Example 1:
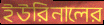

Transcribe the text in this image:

ইউরিনালের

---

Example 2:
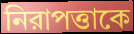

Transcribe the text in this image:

নিরাপত্তাকে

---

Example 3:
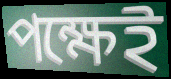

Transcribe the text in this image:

পক্ষেই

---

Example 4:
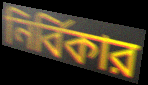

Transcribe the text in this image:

নির্বিকার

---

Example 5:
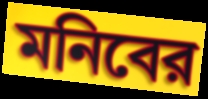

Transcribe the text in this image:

মনিবের